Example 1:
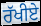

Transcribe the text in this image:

ਰੱਖੀਏ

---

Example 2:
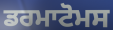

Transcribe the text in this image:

ਡਰਮਾਟੋਮਸ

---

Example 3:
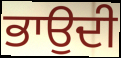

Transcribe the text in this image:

ਭਾਉਦੀ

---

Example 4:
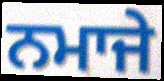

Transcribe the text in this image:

ਨਮਾਜੇ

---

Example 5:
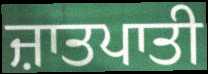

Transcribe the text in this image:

ਜ਼ਾਤਪਾਤੀ